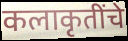
कलाकृतींचे